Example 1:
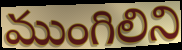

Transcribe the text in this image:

ముంగిలిని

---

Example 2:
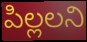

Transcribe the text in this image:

పిల్లలని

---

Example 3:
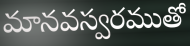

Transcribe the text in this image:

మానవస్వరముతో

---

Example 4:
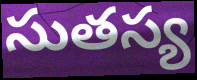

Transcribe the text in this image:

సుతస్య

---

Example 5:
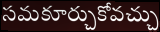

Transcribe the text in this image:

సమకూర్చుకోవచ్చు